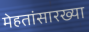
मेहतांसारख्या